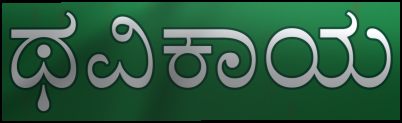
ಥವಿಕಾಯ